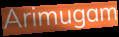
Arimugam